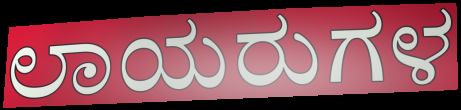
ಲಾಯರುಗಳ